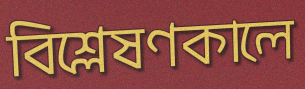
বিশ্লেষণকালে